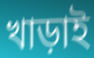
খাড়াই